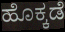
ಹೊಕ್ಕಡೆ